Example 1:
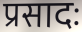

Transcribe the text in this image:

प्रसादः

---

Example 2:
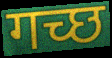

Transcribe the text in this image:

गच्छ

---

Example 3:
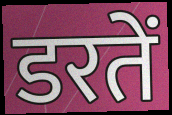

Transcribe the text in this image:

डरतें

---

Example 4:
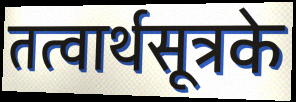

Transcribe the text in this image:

तत्वार्थसूत्रके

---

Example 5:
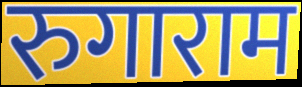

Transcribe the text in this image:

रुगाराम